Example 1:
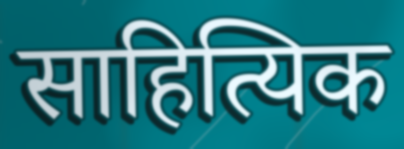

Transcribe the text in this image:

साहित्यिक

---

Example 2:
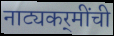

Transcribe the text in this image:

नाट्यकर्मींची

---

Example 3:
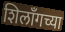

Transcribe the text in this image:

शिलॉंगच्या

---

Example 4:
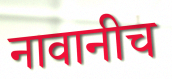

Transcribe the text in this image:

नावानीच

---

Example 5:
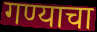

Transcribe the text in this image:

गण्याचा